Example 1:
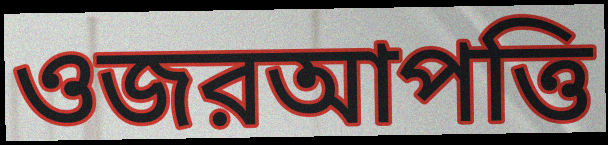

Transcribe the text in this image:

ওজরআপত্তি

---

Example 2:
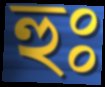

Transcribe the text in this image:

হুঃ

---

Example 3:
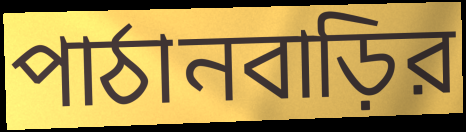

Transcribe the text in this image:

পাঠানবাড়ির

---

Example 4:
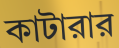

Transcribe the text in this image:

কাটারার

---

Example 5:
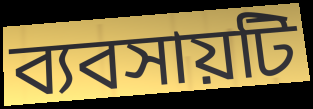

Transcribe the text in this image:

ব্যবসায়টি